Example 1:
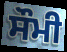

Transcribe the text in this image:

ਸੌਮੀ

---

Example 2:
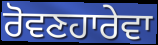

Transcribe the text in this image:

ਰੋਵਣਹਾਰੇਵਾ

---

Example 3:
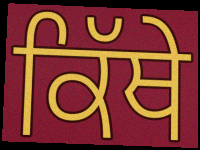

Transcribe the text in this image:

ਕਿੱਥੇ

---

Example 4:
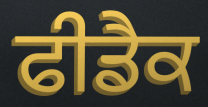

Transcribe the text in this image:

ਫੀਡੈਕ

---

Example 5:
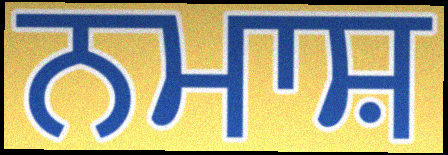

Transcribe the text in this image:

ਨਮਾਸ਼